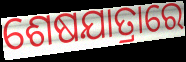
ଶେଷଯାତ୍ରାରେ